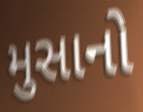
મુસાનો